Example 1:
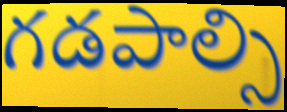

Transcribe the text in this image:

గడపాల్సి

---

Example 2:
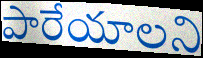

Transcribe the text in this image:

పారేయాలని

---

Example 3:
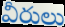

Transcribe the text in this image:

వీరులు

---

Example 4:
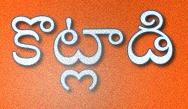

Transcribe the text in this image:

కొట్లాడి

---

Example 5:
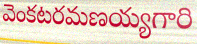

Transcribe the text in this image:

వెంకటరమణయ్యగారి